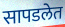
सापडलेत